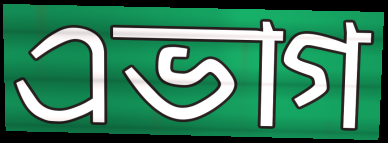
এভাগ